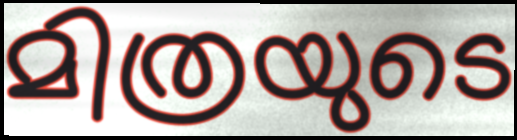
മിത്രയുടെ